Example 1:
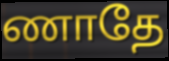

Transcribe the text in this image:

ணாதே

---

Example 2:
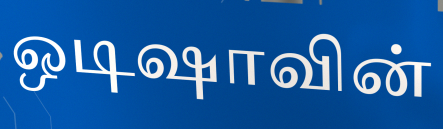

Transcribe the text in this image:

ஒடிஷாவின்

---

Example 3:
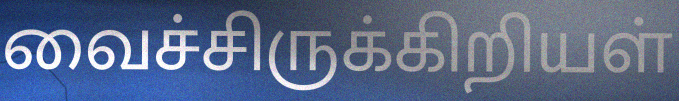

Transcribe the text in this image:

வைச்சிருக்கிறியள்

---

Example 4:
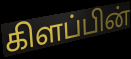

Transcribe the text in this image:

கிளப்பின்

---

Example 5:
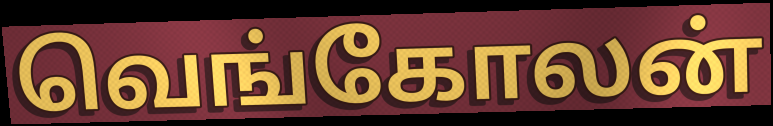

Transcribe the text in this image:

வெங்கோலன்